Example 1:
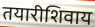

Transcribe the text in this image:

तयारीशिवाय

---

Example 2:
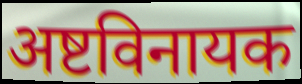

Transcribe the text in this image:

अष्टविनायक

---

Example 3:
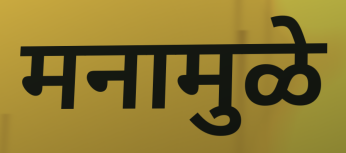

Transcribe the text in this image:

मनामुळे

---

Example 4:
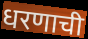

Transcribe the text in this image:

धरणाची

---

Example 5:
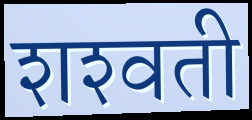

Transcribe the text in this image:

शश्वती